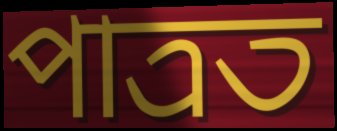
পাত্ৰত